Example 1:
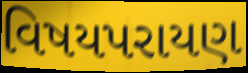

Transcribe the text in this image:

વિષયપરાયણ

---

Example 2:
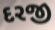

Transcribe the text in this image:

દરજી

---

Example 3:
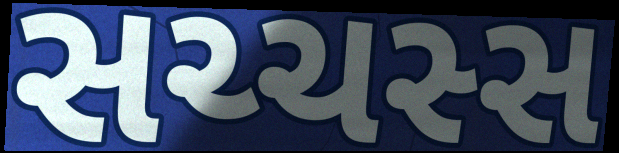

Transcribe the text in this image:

સચ્ચસ્સ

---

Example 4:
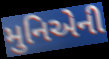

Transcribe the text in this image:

મુનિએની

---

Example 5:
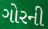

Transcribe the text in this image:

ગોરની